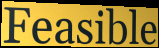
Feasible